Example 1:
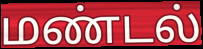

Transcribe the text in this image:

மண்டல்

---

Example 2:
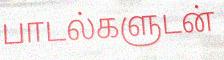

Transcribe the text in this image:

பாடல்களுடன்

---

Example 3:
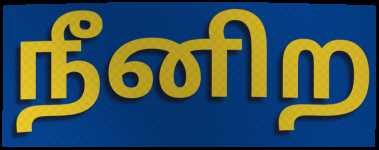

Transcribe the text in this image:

நீனிற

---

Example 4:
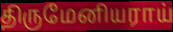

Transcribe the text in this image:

திருமேனியராய்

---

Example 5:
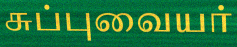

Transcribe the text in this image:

சுப்புவையர்